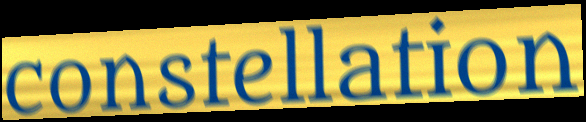
constellation